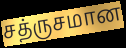
சத்ருசமான